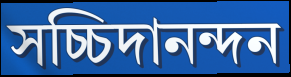
সচ্চিদানন্দন